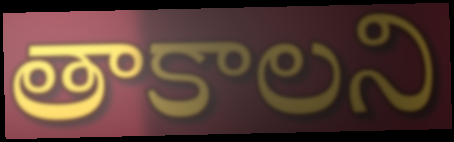
తాకాలని